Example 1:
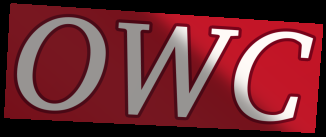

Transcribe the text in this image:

OWC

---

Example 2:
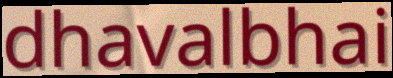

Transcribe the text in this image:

dhavalbhai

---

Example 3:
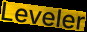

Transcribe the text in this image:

Leveler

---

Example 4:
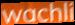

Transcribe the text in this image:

wachli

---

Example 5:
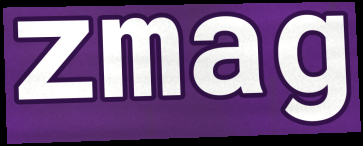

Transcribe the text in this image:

zmag